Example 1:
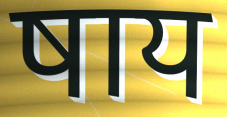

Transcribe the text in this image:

षाय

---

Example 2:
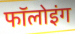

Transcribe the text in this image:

फॉलोइंग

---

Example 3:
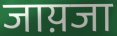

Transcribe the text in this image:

जाय़जा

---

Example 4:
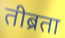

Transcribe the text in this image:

तीब्रता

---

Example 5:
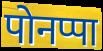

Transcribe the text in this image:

पोनप्‍पा